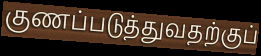
குணப்படுத்துவதற்குப்